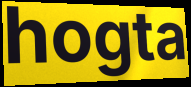
hogta